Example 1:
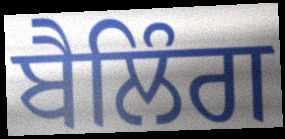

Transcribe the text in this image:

ਬੈਲਿੰਗ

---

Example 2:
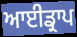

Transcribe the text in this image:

ਆਈਡ੍ਰਾਪ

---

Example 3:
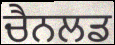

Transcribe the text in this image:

ਚੈਨਲਡ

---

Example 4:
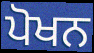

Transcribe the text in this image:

ਪੋਖਨ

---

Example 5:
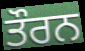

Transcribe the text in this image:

ਤੌਰਨ